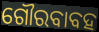
ଗୌରବାବହ